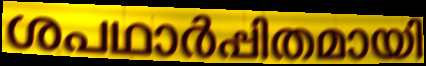
ശപഥാർപ്പിതമായി